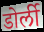
डोर्ली